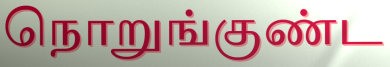
நொறுங்குண்ட